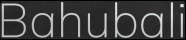
Bahubali